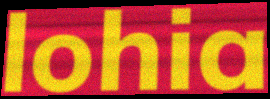
lohia